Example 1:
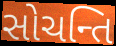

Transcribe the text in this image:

સોચન્તિ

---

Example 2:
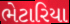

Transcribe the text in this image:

ભેટારિયા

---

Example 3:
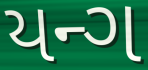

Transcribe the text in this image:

યન્ગ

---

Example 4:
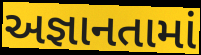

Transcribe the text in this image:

અજ્ઞાનતામાં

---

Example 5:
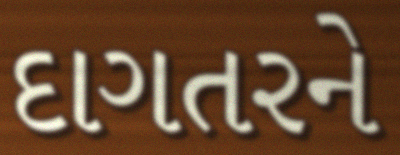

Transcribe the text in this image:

દાગતરને